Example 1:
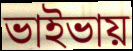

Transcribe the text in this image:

ভাইভায়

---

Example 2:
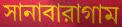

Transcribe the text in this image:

সানাবারাগাম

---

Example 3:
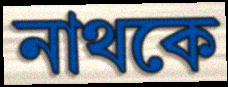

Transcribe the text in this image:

নাথকে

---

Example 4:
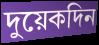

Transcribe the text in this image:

দুয়েকদিন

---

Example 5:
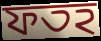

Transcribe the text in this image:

ফতহ